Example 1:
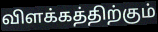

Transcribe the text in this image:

விளக்கத்திற்கும்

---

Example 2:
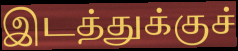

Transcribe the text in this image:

இடத்துக்குச்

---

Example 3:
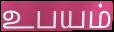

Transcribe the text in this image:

உபயம்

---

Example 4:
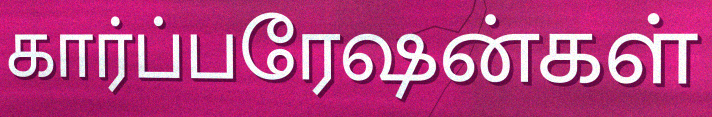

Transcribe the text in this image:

கார்ப்பரேஷன்கள்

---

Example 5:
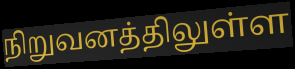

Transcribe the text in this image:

நிறுவனத்திலுள்ள